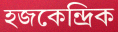
হজকেন্দ্রিক